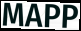
MAPP